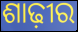
ଶାଢ଼ୀର